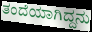
ತಂದೆಯಾಗಿದ್ದನು